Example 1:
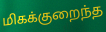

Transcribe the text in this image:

மிகக்குறைந்த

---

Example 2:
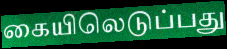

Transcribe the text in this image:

கையிலெடுப்பது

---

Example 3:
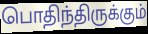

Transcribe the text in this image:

பொதிந்திருக்கும்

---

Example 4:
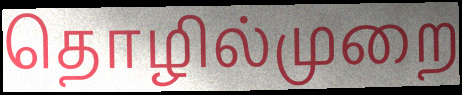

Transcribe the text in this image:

தொழில்முறை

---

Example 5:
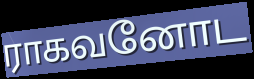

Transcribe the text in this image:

ராகவனோட